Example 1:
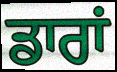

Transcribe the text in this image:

ਡਾਰਾਂ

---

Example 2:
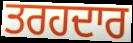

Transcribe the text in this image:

ਤਰਹਦਾਰ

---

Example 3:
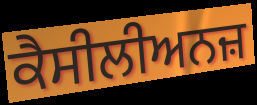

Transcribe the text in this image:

ਕੈਸੀਲੀਅਨਜ਼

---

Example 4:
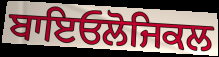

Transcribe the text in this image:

ਬਾਇਓਲੋਜਿਕਲ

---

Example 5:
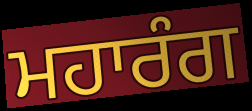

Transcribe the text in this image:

ਮਹਾਰੰਗ